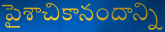
పైశాచికానందాన్ని